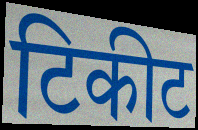
टिकीट